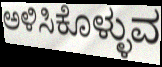
ಅಳಿಸಿಕೊಳ್ಳುವ